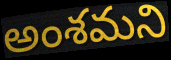
అంశమని